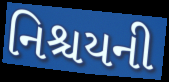
નિશ્ચયની